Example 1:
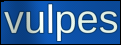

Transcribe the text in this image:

vulpes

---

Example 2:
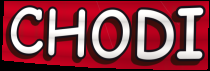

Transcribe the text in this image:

CHODI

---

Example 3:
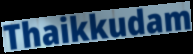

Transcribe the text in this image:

Thaikkudam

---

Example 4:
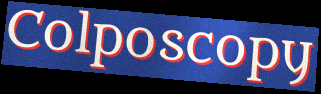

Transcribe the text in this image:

Colposcopy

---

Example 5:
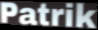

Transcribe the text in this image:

Patrik